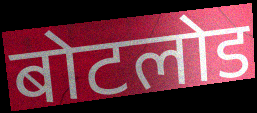
बोटलोड